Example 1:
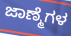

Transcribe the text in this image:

ಜಾಣ್ಮೆಗಳ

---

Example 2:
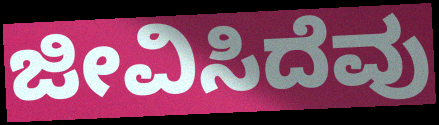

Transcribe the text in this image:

ಜೀವಿಸಿದೆವು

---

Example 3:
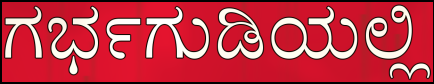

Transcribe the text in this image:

ಗರ್ಭಗುಡಿಯಲ್ಲಿ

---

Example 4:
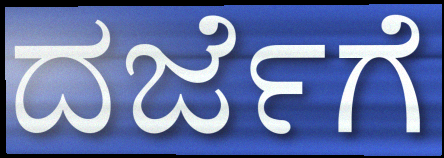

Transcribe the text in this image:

ದರ್ಜೆಗೆ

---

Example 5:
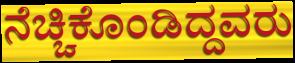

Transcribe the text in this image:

ನೆಚ್ಚಿಕೊಂಡಿದ್ದವರು